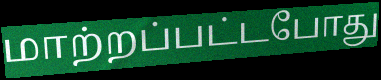
மாற்றப்பட்டபோது